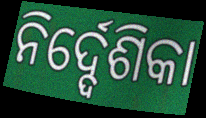
ନିର୍ଦ୍ଦେଶିକା